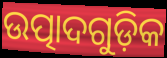
ଉତ୍ପାଦଗୁଡ଼ିକ